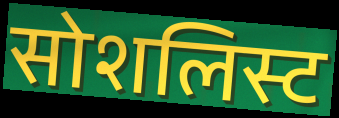
सोशलिस्ट